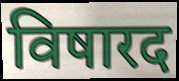
विषारद